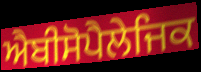
ਐਬੀਸੋਪੈਲੇਜਿਕ